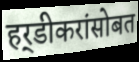
हर्डीकरांसोबत